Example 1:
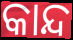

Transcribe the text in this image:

କାନ୍ଦ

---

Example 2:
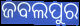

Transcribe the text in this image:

ଜବଲପୁର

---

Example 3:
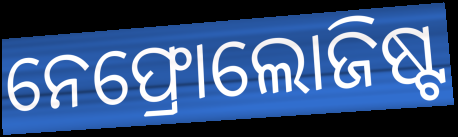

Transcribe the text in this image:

ନେଫ୍ରୋଲୋଜିଷ୍ଟ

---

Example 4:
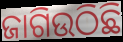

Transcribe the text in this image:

ଜାଗିଉଠିଛି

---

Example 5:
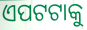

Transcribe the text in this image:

ଏପଟଟାକୁ